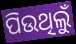
ପିଉଥିଲୁଁ